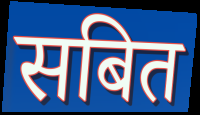
सबित